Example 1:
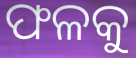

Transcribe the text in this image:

ଫଳକୁ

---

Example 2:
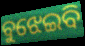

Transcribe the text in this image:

ବୁଝେଇବି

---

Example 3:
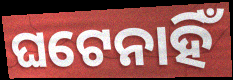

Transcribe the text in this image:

ଘଟେନାହିଁ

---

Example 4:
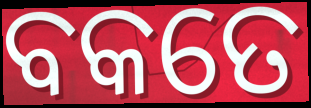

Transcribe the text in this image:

ବକତେ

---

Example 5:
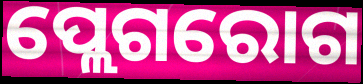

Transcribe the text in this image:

ପ୍ଲେଗରୋଗ